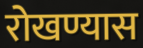
रोखण्यास